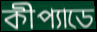
কীপ্যাডে